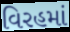
વિરહમાં